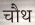
चौथ